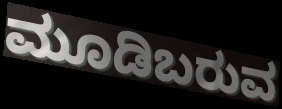
ಮೂಡಿಬರುವ